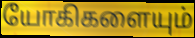
யோகிகளையும்